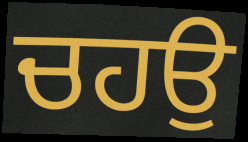
ਚਹਉ